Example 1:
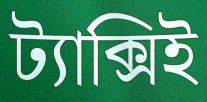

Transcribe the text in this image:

ট্যাক্সিই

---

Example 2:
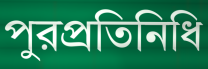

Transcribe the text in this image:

পুরপ্রতিনিধি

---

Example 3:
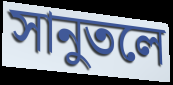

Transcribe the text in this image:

সানুতলে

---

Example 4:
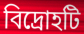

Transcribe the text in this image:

বিদ্রোহটি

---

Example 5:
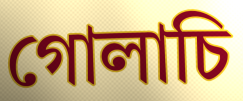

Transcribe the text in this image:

গোলাচি